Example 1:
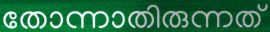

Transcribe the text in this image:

തോന്നാതിരുന്നത്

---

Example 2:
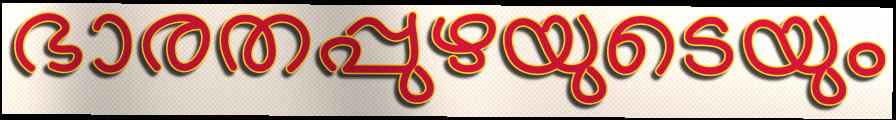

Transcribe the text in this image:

ഭാരതപ്പുഴയുടെയും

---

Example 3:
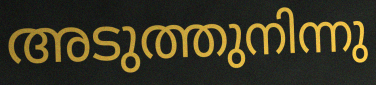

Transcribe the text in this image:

അടുത്തുനിന്നു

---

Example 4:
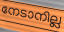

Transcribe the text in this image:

നേടാനില്ല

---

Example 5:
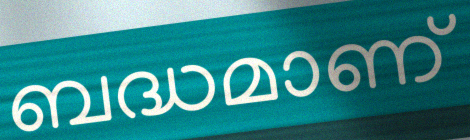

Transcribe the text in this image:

ബദ്ധമാണ്